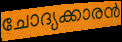
ചോദ്യക്കാരൻ